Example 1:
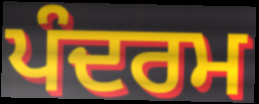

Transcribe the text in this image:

ਪੰਦਰਮ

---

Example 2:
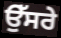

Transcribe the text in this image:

ਉੱਸਰੇ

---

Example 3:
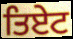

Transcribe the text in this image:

ਤਿਏਟ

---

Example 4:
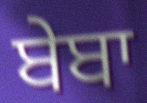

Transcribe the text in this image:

ਬੇਬਾ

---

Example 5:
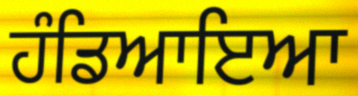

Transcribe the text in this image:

ਹੰਡਿਆਇਆ